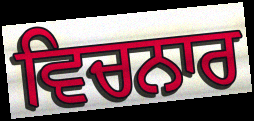
ਵਿਚਨਾਰ